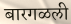
बारगळली